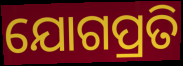
ଯୋଗପ୍ରତି